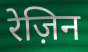
रेज़िन